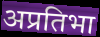
अप्रतिभा